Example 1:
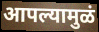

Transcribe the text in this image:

आपल्यामुळं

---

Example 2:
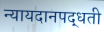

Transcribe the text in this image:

न्यायदानपद्धती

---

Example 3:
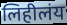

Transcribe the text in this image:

लिहीलंय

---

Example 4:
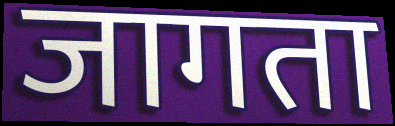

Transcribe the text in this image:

जागता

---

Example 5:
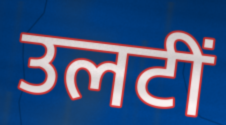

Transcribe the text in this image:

उलटीं